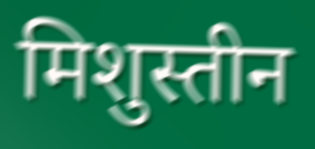
मिशुस्तीन